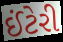
ઈંટેરી